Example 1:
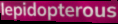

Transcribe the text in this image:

lepidopterous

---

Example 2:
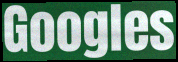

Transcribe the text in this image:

Googles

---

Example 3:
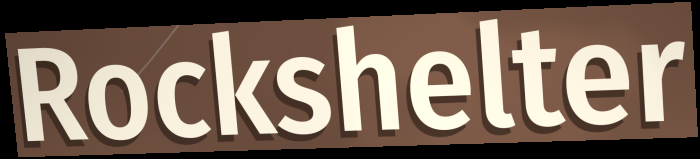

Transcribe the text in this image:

Rockshelter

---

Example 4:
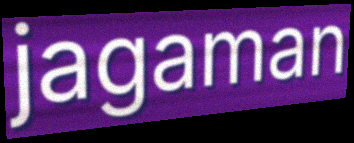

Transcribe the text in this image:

jagaman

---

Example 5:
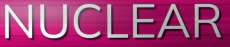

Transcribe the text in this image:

NUCLEAR